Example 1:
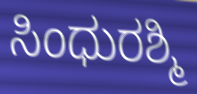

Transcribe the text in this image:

ಸಿಂಧುರಶ್ಮಿ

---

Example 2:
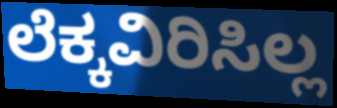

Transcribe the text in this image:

ಲೆಕ್ಕವಿರಿಸಿಲ್ಲ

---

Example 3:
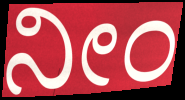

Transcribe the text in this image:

ನೀಂ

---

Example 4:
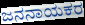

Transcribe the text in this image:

ಜನನಾಯಕರ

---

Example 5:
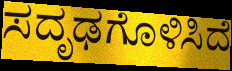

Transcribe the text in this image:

ಸದೃಢಗೊಳಿಸಿದೆ